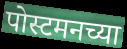
पोस्टमनच्या